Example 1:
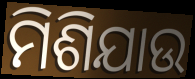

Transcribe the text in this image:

ମିଶିଯାଉ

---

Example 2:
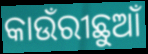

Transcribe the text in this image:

କାଉଁରୀଛୁଆଁ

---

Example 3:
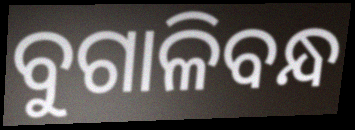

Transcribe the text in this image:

ବୁଗାଳିବନ୍ଧ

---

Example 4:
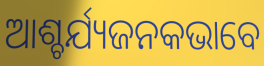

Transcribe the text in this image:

ଆଶ୍ଚର୍ଯ୍ୟଜନକଭାବେ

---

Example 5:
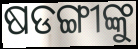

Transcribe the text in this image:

ଷଡଙ୍ଗୀଙ୍କୁ